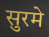
सुरमे